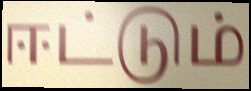
ஈட்டும்